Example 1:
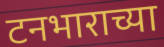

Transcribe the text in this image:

टनभाराच्या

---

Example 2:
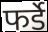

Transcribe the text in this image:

फर्डे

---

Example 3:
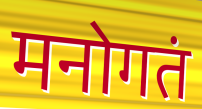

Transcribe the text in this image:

मनोगतं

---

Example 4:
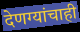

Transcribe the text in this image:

देणग्यांचाही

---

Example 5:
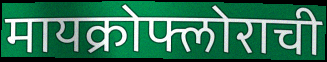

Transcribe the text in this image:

मायक्रोफ्लोराची